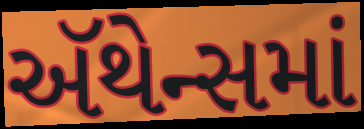
ઍથેન્સમાં